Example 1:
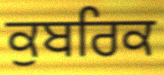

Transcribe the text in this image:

ਕੁਬਰਿਕ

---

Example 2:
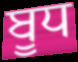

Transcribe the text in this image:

ਬੂਧ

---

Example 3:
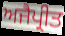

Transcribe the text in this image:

ਅਜੈਪ੍ਰੀਤ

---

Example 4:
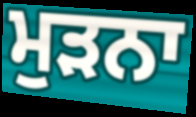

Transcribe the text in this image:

ਮੁੜਨਾ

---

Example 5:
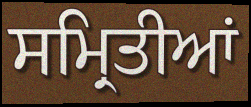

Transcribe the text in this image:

ਸਮ੍ਰਿਤੀਆਂ